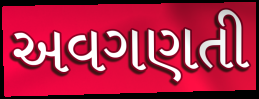
અવગણતી